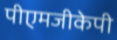
पीएमजीकेपी